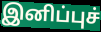
இனிப்புச்